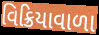
વિક્રિયાવાળા